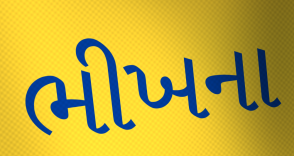
ભીખના